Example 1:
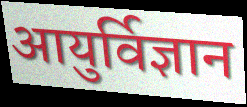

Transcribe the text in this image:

आयुर्विज्ञान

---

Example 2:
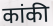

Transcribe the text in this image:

कांकी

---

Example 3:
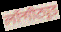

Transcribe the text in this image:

लॉन्गीट्यूड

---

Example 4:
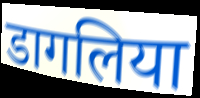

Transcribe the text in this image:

डागलिया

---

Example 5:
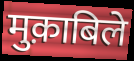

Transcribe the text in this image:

मुक़ाबिले